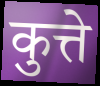
कुत्ते